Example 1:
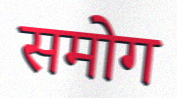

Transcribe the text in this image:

समोग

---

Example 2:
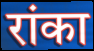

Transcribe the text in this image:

रांका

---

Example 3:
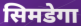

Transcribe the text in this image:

सिमडेगा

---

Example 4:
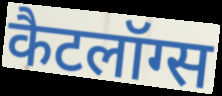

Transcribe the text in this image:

कैटलॉग्स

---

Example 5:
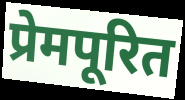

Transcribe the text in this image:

प्रेमपूरित